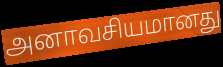
அனாவசியமானது